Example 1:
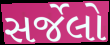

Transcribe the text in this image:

સર્જેલો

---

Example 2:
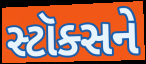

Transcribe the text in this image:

સ્ટૉક્સને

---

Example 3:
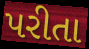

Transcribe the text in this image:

પરીતા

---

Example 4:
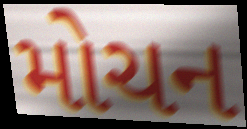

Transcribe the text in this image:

મોચન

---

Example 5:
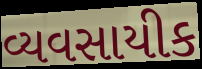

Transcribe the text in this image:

વ્યવસાયીક